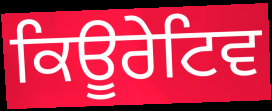
ਕਿਊਰੇਟਿਵ